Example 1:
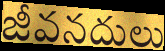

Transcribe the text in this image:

జీవనదులు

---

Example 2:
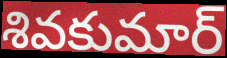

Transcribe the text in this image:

శివకుమార్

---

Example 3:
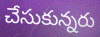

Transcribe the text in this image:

చేసుకున్నరు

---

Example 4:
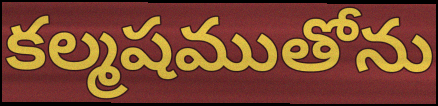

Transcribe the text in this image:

కల్మషముతోను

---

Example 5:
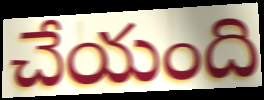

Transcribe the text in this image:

చేయంది